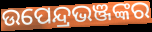
ଉପେନ୍ଦ୍ରଭଞ୍ଜଙ୍କର